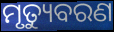
ମୃତ୍ୟୁବରଣ